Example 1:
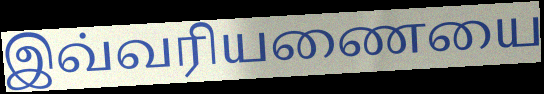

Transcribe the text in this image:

இவ்வரியணையை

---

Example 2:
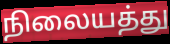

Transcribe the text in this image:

நிலையத்து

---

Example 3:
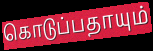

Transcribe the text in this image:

கொடுப்பதாயும்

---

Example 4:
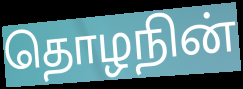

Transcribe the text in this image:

தொழநின்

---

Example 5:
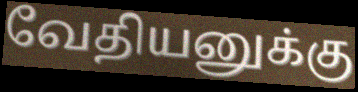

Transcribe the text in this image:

வேதியனுக்கு